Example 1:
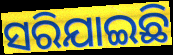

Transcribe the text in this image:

ସରିଯାଇଛି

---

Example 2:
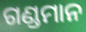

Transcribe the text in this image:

ଗଣ୍ଡମାନ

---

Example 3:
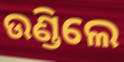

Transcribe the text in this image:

ଉଣ୍ଡିଲେ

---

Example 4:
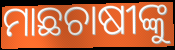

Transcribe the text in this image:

ମାଛଚାଷୀଙ୍କୁ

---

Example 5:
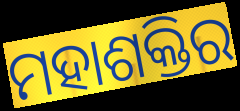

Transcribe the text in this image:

ମହାଶକ୍ତିର